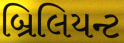
બ્રિલિયન્ટ